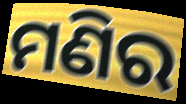
ମଣିର